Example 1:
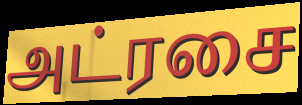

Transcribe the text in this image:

அட்ரசை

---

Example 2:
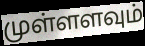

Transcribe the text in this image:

முள்ளளவும்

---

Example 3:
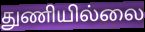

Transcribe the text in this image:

துணியில்லை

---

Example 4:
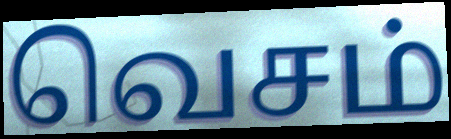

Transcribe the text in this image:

வெசம்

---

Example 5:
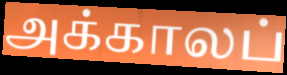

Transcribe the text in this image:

அக்காலப்